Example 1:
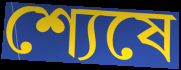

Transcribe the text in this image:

শ্যেষে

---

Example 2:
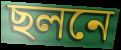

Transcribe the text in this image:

ছলনে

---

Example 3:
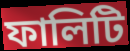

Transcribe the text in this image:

ফালিটি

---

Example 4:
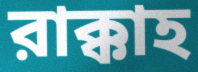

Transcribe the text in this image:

রাক্কাহ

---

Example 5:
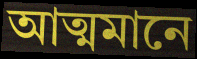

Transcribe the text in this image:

আত্মমানে